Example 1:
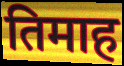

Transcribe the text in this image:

तिमाह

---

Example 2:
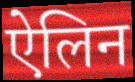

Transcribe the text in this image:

ऐलिन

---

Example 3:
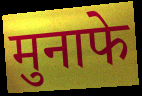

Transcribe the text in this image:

मुनाफे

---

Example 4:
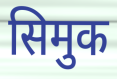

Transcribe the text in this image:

सिमुक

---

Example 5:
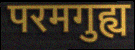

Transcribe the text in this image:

परमगुह्य